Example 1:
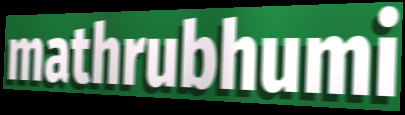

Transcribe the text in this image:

mathrubhumi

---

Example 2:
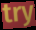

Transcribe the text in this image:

try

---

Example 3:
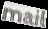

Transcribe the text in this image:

mail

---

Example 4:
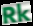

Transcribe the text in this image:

Rk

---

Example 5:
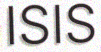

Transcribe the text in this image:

ISIS